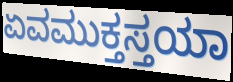
ಏವಮುಕ್ತಸ್ತಯಾ